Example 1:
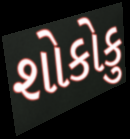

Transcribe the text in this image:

શોકોકુ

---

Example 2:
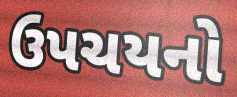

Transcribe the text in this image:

ઉપચયનો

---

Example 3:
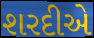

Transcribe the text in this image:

શરદીએ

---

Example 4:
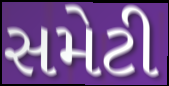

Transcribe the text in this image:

સમેટી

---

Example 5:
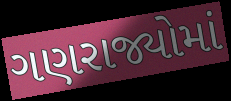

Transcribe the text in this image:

ગણરાજ્યોમાં